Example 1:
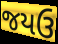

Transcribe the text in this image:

જયઉ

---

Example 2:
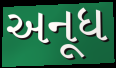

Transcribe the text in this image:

અનૂધ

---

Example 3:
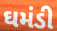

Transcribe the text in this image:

ઘમંડી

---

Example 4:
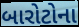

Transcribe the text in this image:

બારોટોના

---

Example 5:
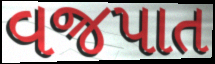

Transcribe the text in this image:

વજ્રપાત